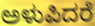
ಅಳುಪಿದರೆ